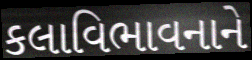
કલાવિભાવનાને